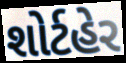
શોર્ટહેર